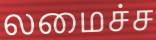
லமைச்ச